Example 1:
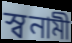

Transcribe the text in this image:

স্বনামী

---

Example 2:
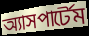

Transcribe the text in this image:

অ্যাসপার্টেম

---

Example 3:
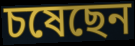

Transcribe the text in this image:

চষেছেন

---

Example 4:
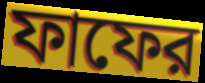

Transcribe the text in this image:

ফাফের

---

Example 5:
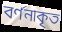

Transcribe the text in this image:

বর্ণনাকৃত